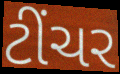
ટીંચર